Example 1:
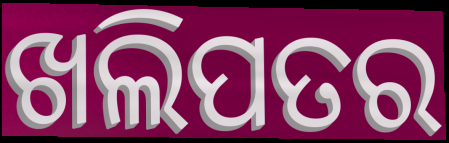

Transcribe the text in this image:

ଖଲିପତର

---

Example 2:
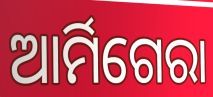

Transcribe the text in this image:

ଆର୍ମିଗେରା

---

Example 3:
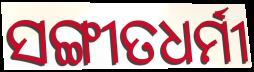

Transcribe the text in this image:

ସଙ୍ଗୀତଧର୍ମୀ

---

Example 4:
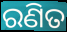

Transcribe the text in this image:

ରଣିତ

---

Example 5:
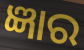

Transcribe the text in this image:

ଜ୍ଞାର